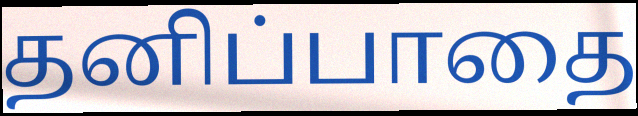
தனிப்பாதை